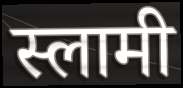
स्लामी